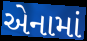
એનામાં